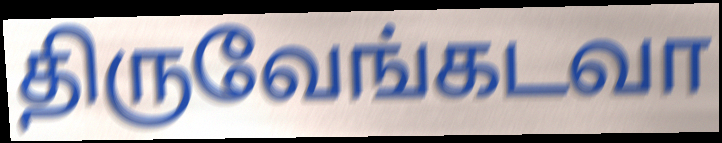
திருவேங்கடவா